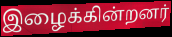
இழைக்கின்றனர்